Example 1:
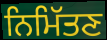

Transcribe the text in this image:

ਨਿਮਿੱਤਣ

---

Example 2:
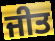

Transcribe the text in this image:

ਜੀਤ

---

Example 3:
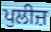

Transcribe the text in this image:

ਪੁਲੀਜ਼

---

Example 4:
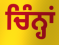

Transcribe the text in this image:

ਚਿੰਨ੍ਹਾਂ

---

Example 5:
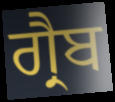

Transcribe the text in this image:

ਗ੍ਰੈਬ